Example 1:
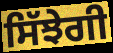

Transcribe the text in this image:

ਸਿੱਝੇਗੀ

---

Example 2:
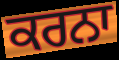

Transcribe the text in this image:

ਕਰਨਾ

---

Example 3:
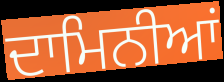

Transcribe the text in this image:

ਦਾਮਿਨੀਆਂ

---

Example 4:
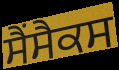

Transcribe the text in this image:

ਸੈਂਸੈਕਸ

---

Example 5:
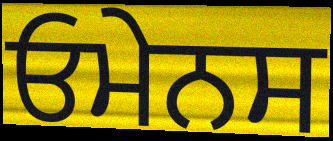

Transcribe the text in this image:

ਓਮੇਨਸ